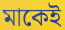
মাকেই